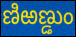
ణిఱణ్డుం